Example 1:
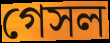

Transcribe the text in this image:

গেসল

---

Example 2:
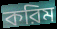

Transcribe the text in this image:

করিম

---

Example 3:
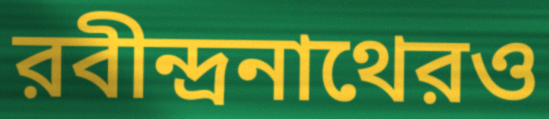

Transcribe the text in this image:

রবীন্দ্রনাথেরও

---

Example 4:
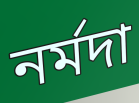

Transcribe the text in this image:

নর্মদা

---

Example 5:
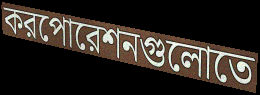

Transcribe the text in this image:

করপোরেশনগুলোতে